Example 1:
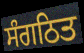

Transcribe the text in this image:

ਸੰਗਠਿਤ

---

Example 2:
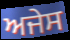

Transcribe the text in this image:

ਅਜੇਸ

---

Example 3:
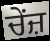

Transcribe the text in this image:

ਚੇਂਜ਼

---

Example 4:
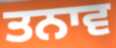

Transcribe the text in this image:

ਤਨਾਵ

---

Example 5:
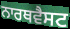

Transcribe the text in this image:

ਨਾਰਥਵੈਸਟ